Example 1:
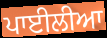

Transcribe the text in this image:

ਪਾਈਲੀਆ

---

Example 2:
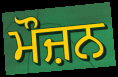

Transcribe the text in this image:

ਮੌਜ਼ਨ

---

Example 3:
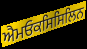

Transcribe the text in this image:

ਐਮਓਕਸਿਸਿਲਿਨ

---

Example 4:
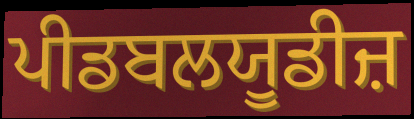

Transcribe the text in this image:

ਪੀਡਬਲਯੂਡੀਜ਼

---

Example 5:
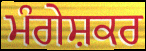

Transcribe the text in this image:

ਮੰਗੇਸ਼ਕਰ